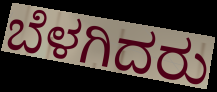
ಬೆಳಗಿದರು